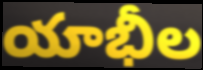
యాభీల